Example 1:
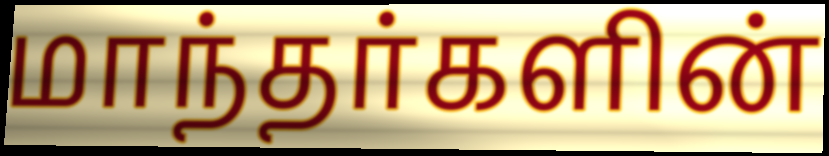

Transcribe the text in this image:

மாந்தர்களின்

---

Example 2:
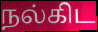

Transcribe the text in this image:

நல்கிட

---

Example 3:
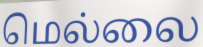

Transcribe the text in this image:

மெல்லை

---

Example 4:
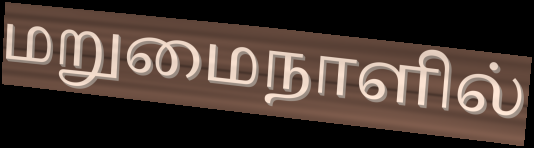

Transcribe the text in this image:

மறுமைநாளில்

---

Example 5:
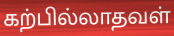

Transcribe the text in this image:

கற்பில்லாதவள்